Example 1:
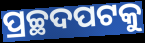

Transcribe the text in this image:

ପ୍ରଚ୍ଛଦପଟକୁ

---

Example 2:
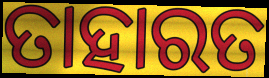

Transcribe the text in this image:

ତାହାରତ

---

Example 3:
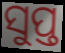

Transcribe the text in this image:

ସୁପ୍ତ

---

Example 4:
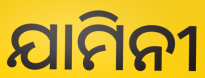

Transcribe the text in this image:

ଯାମିନୀ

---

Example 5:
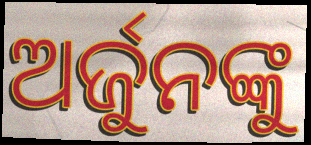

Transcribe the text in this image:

ଅର୍ଜୁନଙ୍କୁ